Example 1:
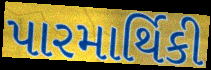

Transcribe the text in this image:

પારમાર્થિકી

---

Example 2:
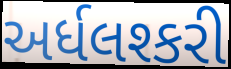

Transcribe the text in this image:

અર્ધલશ્કરી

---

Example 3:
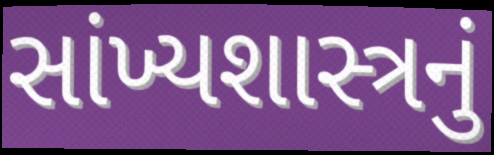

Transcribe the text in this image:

સાંખ્યશાસ્ત્રનું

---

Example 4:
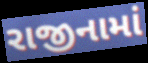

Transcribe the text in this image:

રાજીનામાં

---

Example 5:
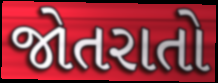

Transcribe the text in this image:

જોતરાતો